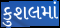
કુશલમાં